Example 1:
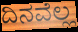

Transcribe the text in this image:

ದಿನವೆಲ್ಲ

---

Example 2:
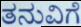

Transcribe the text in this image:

ತನುವಿಗೆ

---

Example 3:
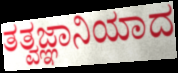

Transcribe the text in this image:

ತತ್ವಜ್ಞಾನಿಯಾದ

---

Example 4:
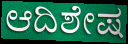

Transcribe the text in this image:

ಆದಿಶೇಷ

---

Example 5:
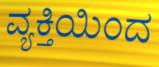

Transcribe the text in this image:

ವ್ಯಕ್ತಿಯಿಂದ